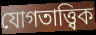
যোগতাত্ত্বিক